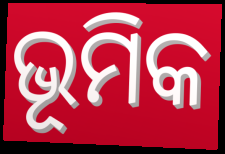
ଭୂମିକ